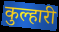
कुल्हारी